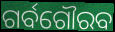
ଗର୍ବଗୌରବ